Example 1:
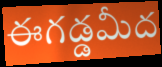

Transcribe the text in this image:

ఈగడ్డమీద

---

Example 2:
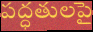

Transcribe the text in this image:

పద్ధతులపై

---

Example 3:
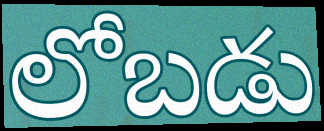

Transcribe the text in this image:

లోబడు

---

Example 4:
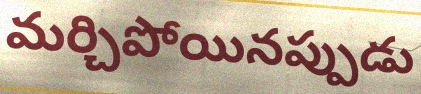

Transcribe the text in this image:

మర్చిపోయినప్పుడు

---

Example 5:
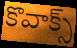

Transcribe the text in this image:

కొవాక్స్